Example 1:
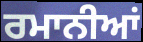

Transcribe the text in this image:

ਰਮਾਨੀਆਂ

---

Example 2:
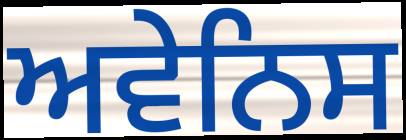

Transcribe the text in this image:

ਅਵੇਨਿਸ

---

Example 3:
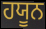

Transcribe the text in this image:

ਹਯੂਨ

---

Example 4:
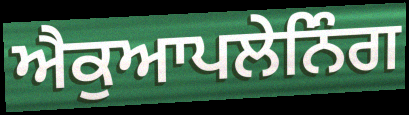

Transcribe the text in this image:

ਐਕੁਆਪਲੇਨਿੰਗ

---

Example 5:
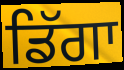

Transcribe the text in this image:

ਡਿੱਗਾ